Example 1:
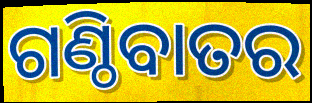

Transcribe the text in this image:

ଗଣ୍ଠିବାତର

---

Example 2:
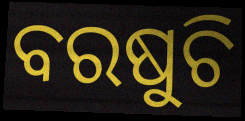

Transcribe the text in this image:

ବରଷୁଚି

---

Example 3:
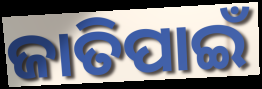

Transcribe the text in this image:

ଜାତିପାଇଁ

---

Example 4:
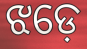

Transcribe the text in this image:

ଝଡ଼େ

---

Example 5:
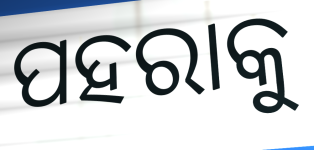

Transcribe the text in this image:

ପହରାକୁ